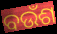
ବଉଁଶ